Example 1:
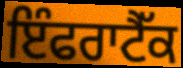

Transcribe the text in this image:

ਇੰਫਰਾਟੈੱਕ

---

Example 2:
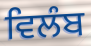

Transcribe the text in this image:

ਵਿਲੰਬ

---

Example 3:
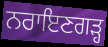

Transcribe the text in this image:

ਨਰਾਇਣਗੜ੍ਹ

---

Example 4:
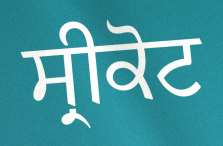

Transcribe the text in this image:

ਸ੍ਰੀਕੋਟ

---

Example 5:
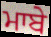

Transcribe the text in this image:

ਮਾਬੇ